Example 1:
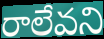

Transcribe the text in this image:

రాలేవని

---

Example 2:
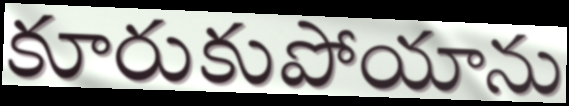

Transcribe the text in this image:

కూరుకుపోయాను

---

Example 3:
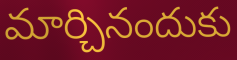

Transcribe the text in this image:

మార్చినందుకు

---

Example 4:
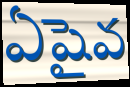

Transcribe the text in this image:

ఏషైవ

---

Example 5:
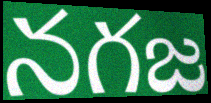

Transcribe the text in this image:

నగజ